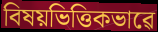
বিষয়ভিত্তিকভাৱে